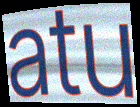
atu